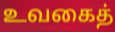
உவகைத்